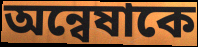
অন্বেষাকে